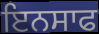
ਇਨਸਾਫ